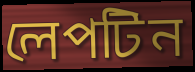
লেপটিন